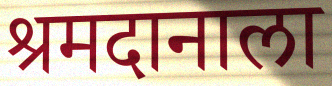
श्रमदानाला